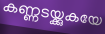
കണ്ണടയ്ക്കുകയേ